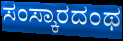
ಸಂಸ್ಕಾರದಂಥ